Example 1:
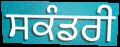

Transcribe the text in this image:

ਸਕੰਡਰੀ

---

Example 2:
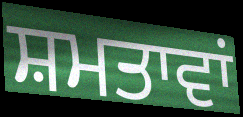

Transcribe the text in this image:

ਸ਼ਮਤਾਵਾਂ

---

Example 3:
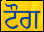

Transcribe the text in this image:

ਟੌਗ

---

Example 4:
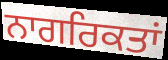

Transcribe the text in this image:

ਨਾਗਰਿਕਤਾਂ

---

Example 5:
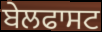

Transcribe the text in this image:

ਬੇਲਫਾਸਟ